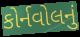
કોર્નવોલનું